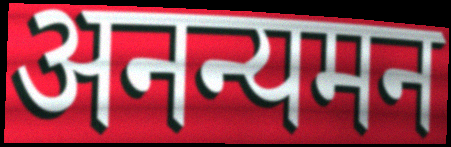
अनन्यमन